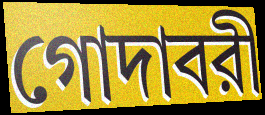
গোদাবরী